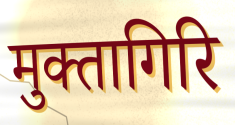
मुक्तागिरि